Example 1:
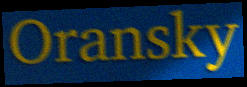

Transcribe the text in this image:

Oransky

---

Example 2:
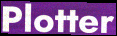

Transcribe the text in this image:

Plotter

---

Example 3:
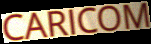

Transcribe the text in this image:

CARICOM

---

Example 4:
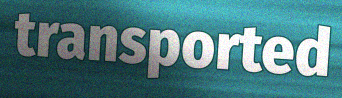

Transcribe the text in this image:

transported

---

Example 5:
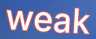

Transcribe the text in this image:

weak